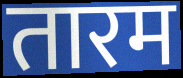
तारम